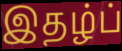
இதழ்ப்